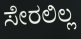
ಸೇರಲಿಲ್ಲ